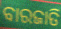
ବାରଜାତି